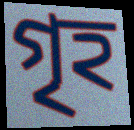
গৃহ